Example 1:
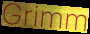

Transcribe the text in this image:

Grimm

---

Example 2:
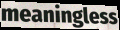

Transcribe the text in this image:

meaningless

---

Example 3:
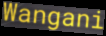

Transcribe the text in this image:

Wangani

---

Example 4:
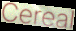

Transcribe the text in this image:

Cereal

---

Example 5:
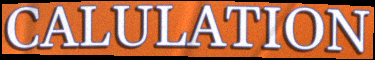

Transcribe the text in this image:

CALULATION